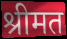
श्रीमत